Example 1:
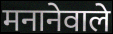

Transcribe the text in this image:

मनानेवाले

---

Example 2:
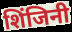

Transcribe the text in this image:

शिंजिनी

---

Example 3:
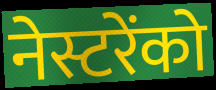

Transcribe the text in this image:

नेस्टरेंको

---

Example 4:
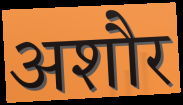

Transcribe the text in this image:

अशौर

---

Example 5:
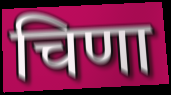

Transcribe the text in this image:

चिणा